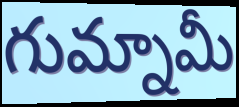
గుమ్నామీ